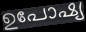
ഉപോഷ്യ